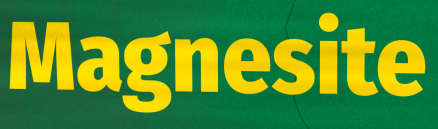
Magnesite